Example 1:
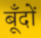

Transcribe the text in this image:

बूँदों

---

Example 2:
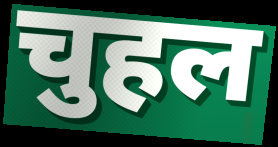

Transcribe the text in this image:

चुहल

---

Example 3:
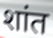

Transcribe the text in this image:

शांत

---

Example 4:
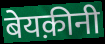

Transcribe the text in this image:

बेयक़ीनी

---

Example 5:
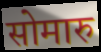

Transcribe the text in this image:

सोमारु